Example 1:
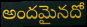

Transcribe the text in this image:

అందమైనదో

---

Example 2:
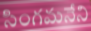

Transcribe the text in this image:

సింగమనేని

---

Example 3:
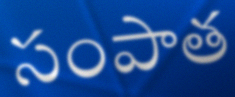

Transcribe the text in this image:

సంపాత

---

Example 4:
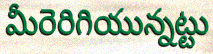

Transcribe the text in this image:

మీరెరిగియున్నట్టు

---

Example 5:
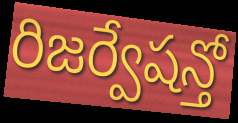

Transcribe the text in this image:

రిజర్వేషన్తో